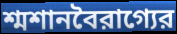
শ্মশানবৈরাগ্যের